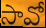
సావో